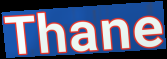
Thane